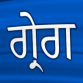
ਗ੍ਰੇਗ